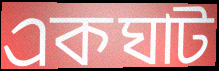
একঘাট